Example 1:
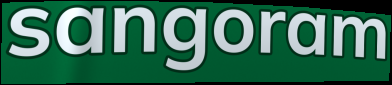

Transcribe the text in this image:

sangoram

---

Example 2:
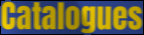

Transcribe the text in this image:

Catalogues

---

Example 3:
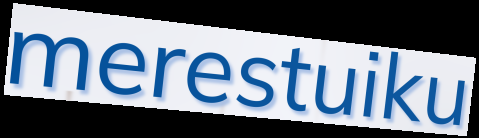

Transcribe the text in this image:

merestuiku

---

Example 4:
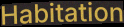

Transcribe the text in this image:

Habitation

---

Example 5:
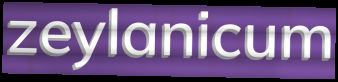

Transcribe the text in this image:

zeylanicum